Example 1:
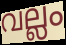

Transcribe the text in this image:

വല്ലം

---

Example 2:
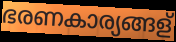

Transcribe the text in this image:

ഭരണകാര്യങ്ങള്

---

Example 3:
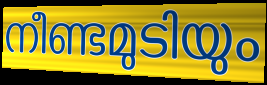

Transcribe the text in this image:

നീണ്ടമുടിയും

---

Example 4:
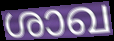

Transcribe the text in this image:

ശാഖ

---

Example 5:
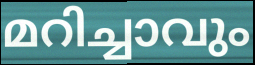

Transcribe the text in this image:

മറിച്ചാവും